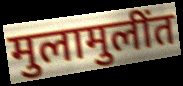
मुलामुलींत